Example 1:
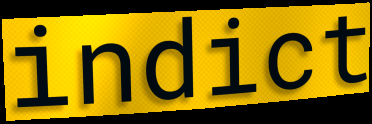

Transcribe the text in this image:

indict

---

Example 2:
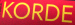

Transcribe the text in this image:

KORDE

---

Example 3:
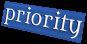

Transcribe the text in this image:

priority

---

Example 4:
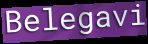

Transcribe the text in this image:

Belegavi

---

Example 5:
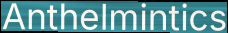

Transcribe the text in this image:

Anthelmintics